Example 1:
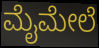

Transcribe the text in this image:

ಮೈಮೇಲೆ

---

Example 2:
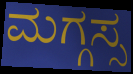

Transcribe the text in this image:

ಮಗ್ಗಸ್ಸ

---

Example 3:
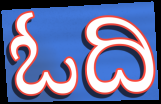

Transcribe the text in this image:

ಓದಿ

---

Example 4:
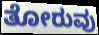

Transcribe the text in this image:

ತೋರುವು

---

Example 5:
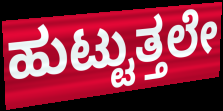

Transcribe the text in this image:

ಹುಟ್ಟುತ್ತಲೇ